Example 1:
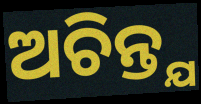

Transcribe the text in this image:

ଅଚିନ୍ତ୍ଯ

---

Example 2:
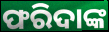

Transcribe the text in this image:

ଫରିଦାଙ୍କ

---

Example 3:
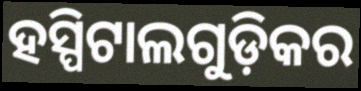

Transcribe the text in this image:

ହସ୍ପିଟାଲଗୁଡ଼ିକର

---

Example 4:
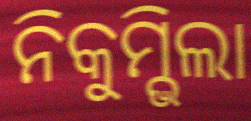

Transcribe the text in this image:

ନିକୁମ୍ଭିଲା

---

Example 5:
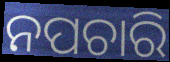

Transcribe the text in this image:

ନପଚାରି